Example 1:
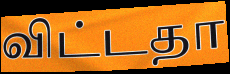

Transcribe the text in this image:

விட்டதா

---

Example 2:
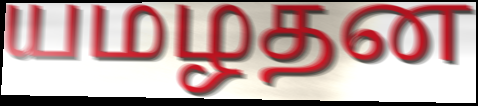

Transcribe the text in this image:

யமழதன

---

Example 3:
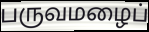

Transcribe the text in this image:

பருவமழைப்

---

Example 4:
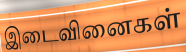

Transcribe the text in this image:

இடைவினைகள்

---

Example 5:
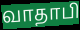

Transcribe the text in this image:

வாதாபி